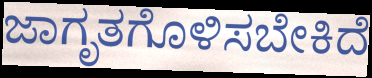
ಜಾಗೃತಗೊಳಿಸಬೇಕಿದೆ